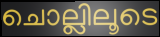
ചൊല്ലിലൂടെ